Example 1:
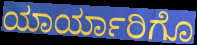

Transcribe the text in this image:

ಯಾರ್ಯಾರಿಗೊ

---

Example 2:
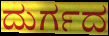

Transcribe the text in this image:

ದುರ್ಗದ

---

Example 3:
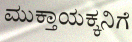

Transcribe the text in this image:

ಮುಕ್ತಾಯಕ್ಕನಿಗೆ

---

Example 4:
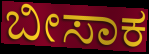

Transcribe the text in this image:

ಬೀಸಾಕ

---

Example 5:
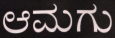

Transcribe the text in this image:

ಆಮಗು